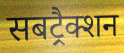
सबट्रैक्शन